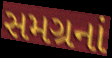
સમગ્રનાં